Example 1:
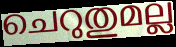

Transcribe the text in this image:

ചെറുതുമല്ല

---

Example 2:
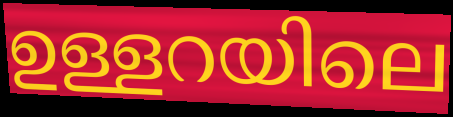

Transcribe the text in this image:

ഉള്ളറയിലെ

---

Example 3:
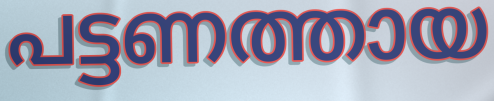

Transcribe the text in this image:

പട്ടണത്തായ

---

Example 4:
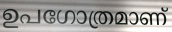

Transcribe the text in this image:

ഉപഗോത്രമാണ്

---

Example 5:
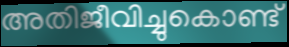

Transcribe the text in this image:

അതിജീവിച്ചുകൊണ്ട്